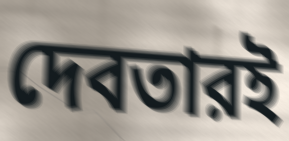
দেবতারই